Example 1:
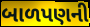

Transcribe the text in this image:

બાળપણની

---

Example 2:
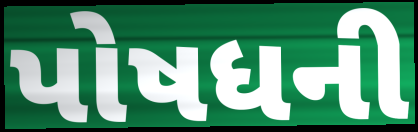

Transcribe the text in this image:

પોષધની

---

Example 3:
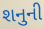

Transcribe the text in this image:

શનુની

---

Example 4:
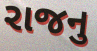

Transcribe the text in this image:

રાજનુ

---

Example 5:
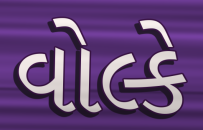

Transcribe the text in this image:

વોલ્કે